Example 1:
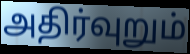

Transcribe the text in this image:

அதிர்வுறும்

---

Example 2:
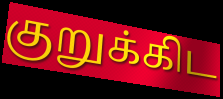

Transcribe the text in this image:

குறுக்கிட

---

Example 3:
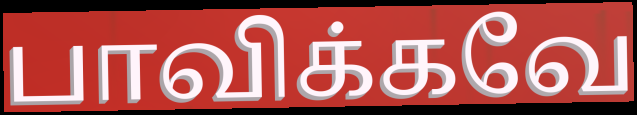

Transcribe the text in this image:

பாவிக்கவே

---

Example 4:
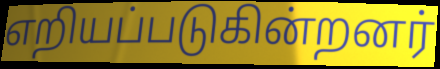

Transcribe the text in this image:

எறியப்படுகின்றனர்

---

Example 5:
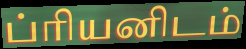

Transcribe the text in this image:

ப்ரியனிடம்